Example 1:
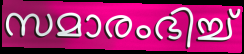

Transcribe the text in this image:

സമാരംഭിച്ച്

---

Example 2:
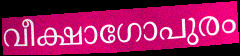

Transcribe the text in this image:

വീക്ഷാഗോപുരം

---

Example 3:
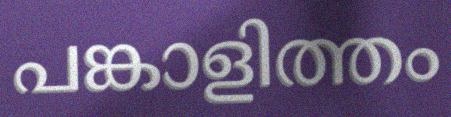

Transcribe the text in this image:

പങ്കാളിത്തം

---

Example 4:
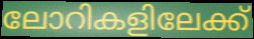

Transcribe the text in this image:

ലോറികളിലേക്ക്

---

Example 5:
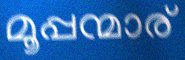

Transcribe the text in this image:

മൂപ്പന്മാര്